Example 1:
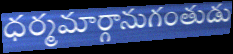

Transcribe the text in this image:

ధర్మమార్గానుగంతుడు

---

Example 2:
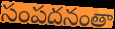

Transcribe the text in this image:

సంపదనంతా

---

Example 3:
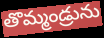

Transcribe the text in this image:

తొమ్మండ్రును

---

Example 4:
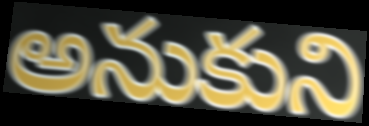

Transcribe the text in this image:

అనుకుని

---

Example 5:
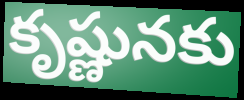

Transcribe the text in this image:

కృష్ణునకు